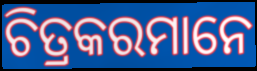
ଚିତ୍ରକରମାନେ